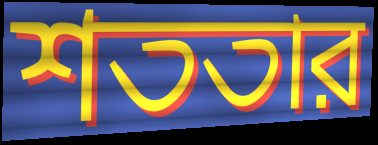
শততার